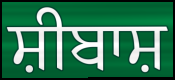
ਸ਼ੀਬਾਸ਼